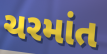
ચરમાંત